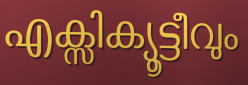
എക്സിക്യൂട്ടീവും